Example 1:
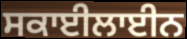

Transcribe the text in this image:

ਸਕਾਈਲਾਈਨ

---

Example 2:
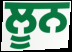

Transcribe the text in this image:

ਲੂਨ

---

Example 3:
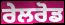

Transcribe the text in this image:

ਰੇਲਰੋਡ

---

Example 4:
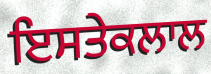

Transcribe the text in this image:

ਇਸਤੇਕਲਾਲ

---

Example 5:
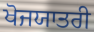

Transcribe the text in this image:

ਖੋਜਯਾਤਰੀ